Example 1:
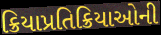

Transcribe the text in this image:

ક્રિયાપ્રતિક્રિયાઓની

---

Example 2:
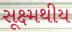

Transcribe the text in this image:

સૂક્ષ્મથીય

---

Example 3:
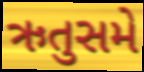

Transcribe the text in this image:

ઋતુસમે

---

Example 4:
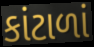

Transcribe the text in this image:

કાંટાળાં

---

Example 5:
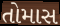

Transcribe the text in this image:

તોમાસ